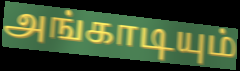
அங்காடியும்